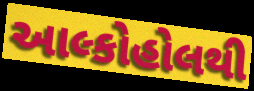
આલ્કોહોલથી